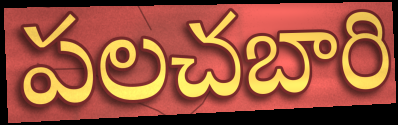
పలచబారి